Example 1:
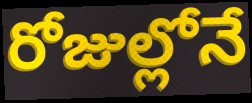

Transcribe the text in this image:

రోజుల్లోనే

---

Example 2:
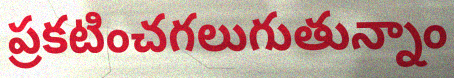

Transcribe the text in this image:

ప్రకటించగలుగుతున్నాం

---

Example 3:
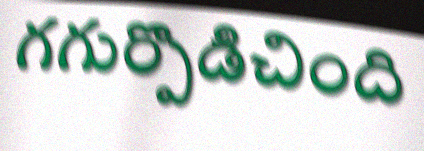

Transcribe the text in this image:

గగుర్పొడిచింది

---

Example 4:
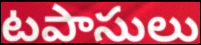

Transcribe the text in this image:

టపాసులు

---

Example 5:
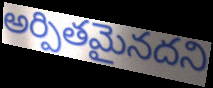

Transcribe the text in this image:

అర్పితమైనదని